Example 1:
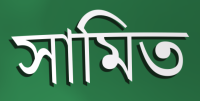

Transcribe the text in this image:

সামিত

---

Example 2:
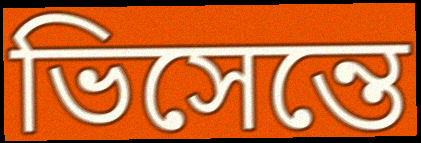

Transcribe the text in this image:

ভিসেন্তে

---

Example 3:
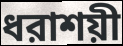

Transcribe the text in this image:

ধরাশয়ী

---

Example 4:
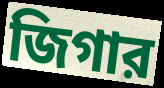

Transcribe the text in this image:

জিগার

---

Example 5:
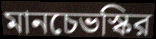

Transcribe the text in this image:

মানচেভস্কির